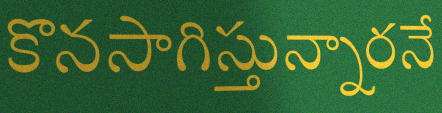
కొనసాగిస్తున్నారనే